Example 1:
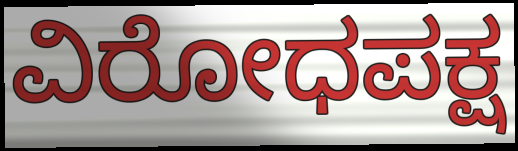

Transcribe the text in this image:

ವಿರೋಧಪಕ್ಷ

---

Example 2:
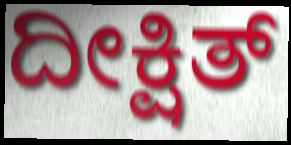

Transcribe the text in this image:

ದೀಕ್ಷಿತ್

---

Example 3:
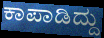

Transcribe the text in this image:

ಕಾಪಾಡಿದ್ದು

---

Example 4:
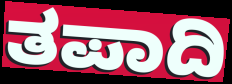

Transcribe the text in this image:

ತಪಾದಿ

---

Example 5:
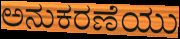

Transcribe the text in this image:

ಅನುಕರಣೆಯು